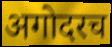
अगोदरच